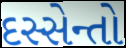
દસ્સેન્તો